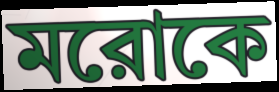
মরোকে